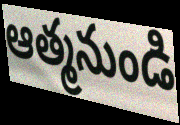
ఆత్మనుండి